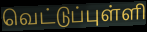
வெட்டுப்புள்ளி